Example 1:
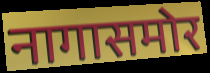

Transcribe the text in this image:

नागासमोर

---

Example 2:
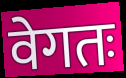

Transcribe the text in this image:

वेगतः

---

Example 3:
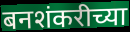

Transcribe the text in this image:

बनशंकरीच्या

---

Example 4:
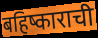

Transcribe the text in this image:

बहिष्काराची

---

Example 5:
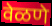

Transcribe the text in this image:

वेळणे